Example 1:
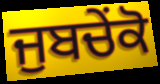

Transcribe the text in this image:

ਜੁਬਚੇਂਕੋ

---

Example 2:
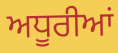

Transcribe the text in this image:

ਅਧੂਰੀਆਂ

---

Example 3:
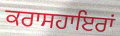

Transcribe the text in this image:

ਕਰਾਸਹਾਇਰਾਂ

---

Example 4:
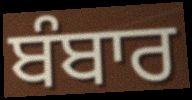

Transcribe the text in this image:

ਬੰਬਾਰ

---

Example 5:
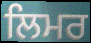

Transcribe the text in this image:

ਲਿਮਰ